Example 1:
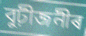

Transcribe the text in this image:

বুঢ়ীজনীৰ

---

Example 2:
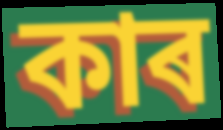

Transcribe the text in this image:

কাৰ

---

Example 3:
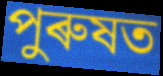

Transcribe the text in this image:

পুৰুষত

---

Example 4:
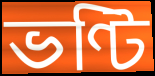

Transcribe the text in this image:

ভণ্টি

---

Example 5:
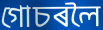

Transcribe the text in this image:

গোচৰলৈ